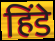
हिंडे